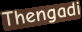
Thengadi